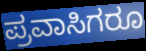
ಪ್ರವಾಸಿಗರೂ